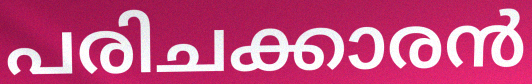
പരിചക്കാരൻ